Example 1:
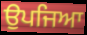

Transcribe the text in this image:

ਉਪਜਿਆ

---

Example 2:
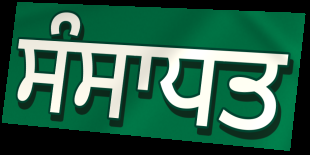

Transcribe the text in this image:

ਸੰਸਾਧਤ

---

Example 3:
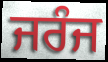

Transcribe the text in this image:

ਜਰੰਜ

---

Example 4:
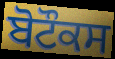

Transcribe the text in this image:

ਬੋਟੌਕਸ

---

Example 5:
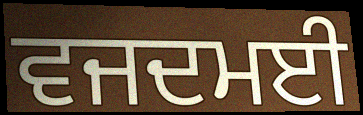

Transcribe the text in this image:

ਵਜਦਮਈ